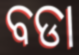
ବଡା